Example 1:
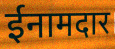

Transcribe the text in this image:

ईनामदार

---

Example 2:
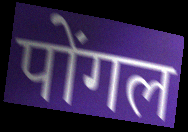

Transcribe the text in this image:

पोंगल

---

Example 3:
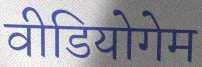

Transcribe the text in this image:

वीडियोगेम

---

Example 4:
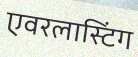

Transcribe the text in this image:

एवरलास्टिंग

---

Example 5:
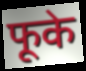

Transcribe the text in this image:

फूके